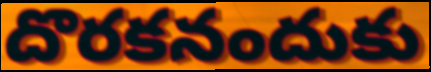
దొరకనందుకు